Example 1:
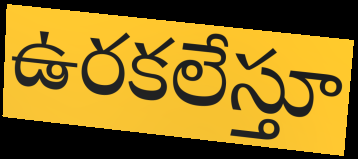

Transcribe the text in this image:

ఉరకలేస్తూ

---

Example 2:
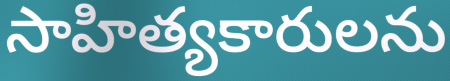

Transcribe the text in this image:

సాహిత్యకారులను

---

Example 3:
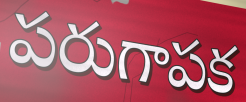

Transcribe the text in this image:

పరుగాపక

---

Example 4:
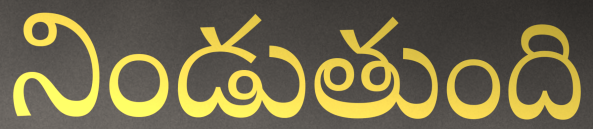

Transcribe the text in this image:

నిండుతుంది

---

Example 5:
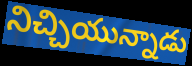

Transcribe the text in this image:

నిచ్చియున్నాడు